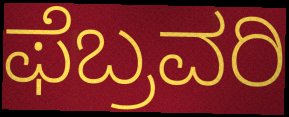
ಫೆಬ್ರವರಿ